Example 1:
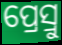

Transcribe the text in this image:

ପ୍ରେସ୍ରୁ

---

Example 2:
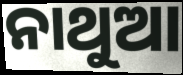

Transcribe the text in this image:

ନାଥୁଆ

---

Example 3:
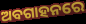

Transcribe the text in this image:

ଅବଗାହନରେ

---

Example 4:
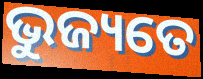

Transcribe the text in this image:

ଭୁଜ୍ୟତେ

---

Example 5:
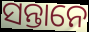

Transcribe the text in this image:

ସନ୍ତାନେ